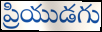
ప్రియుడగు